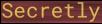
Secretly